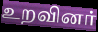
உறவினர்